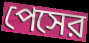
পেসের